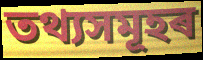
তথ্যসমূহৰ